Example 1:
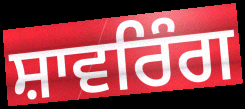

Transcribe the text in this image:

ਸ਼ਾਵਰਿੰਗ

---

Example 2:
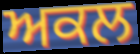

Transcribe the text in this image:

ਅਕਲ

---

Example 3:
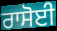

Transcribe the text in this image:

ਰਾਸੋਈ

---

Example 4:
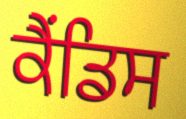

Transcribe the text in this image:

ਕੈਂਡਿਸ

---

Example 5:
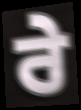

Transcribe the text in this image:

ਰੇ